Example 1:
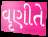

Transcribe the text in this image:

વૃણીતે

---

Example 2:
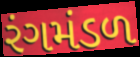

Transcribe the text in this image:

રંગમંડળ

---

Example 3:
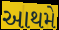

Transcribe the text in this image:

આથમે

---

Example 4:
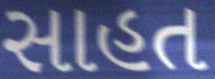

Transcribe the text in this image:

સાહત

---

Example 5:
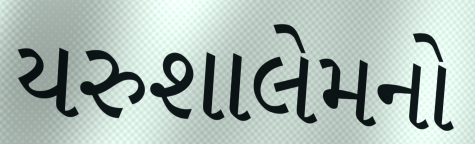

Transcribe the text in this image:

યરુશાલેમનો